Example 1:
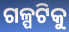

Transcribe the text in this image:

ଗଳ୍ପଟିକୁ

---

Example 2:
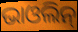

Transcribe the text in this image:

ଭାଓଲିନ୍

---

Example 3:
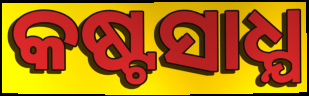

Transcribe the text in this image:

କଷ୍ଟସାଧ୍ଯ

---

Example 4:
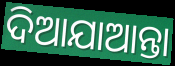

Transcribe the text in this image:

ଦିଆଯାଆନ୍ତା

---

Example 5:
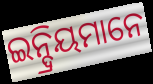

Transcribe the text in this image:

ଇନ୍ଦ୍ରିୟମାନେ